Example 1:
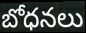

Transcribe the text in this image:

బోధనలు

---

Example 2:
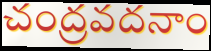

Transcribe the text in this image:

చంద్రవదనాం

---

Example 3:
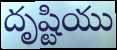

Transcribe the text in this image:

దృష్టియు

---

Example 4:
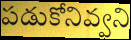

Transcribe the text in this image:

పడుకోనివ్వని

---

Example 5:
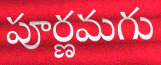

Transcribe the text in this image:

పూర్ణమగు